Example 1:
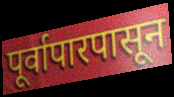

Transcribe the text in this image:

पूर्वापारपासून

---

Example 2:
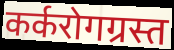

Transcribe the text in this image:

कर्करोगग्रस्त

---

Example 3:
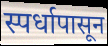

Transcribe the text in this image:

स्पर्धापासून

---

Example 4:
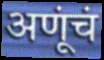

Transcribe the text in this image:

अणूंचं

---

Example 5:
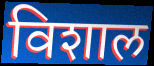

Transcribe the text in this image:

विशाल